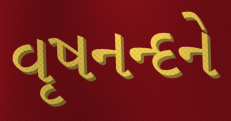
વૃષનન્દને